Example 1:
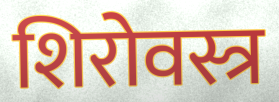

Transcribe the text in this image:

शिरोवस्त्र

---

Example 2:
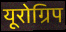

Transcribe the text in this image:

यूरोग्रिप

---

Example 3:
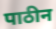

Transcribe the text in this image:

पाठीन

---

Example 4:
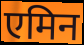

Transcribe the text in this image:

एमिन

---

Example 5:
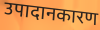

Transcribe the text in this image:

उपादानकारण